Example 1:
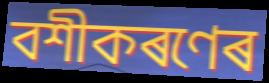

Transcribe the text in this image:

বশীকৰণেৰ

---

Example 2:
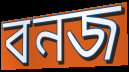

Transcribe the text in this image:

বনজ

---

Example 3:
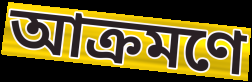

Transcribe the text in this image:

আক্ৰমণে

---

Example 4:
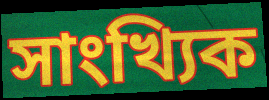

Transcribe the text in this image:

সাংখ্যিক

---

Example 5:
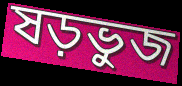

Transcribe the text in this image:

ষড়ভুজ